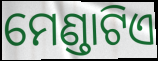
ମେଣ୍ଡାଟିଏ